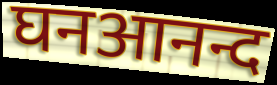
घनआनन्द